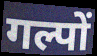
गल्पों